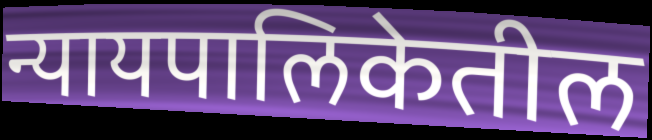
न्यायपालिकेतील